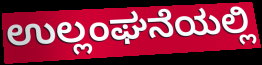
ಉಲ್ಲಂಘನೆಯಲ್ಲಿ